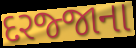
દરજ્જાના